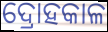
ଦ୍ରୋହକାଳ